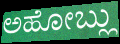
ಅಹೋಬ್ಲು